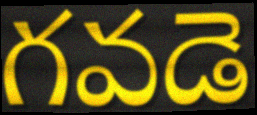
గవడె